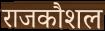
राजकौशल